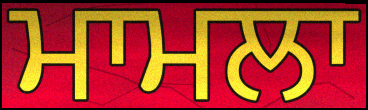
ਮਾਮਲਾ